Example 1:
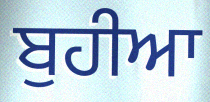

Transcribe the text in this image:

ਬੁਹੀਆ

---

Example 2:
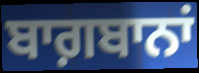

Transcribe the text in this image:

ਬਾਗ਼ਬਾਨਾਂ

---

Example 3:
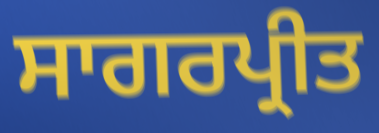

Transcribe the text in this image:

ਸਾਗਰਪ੍ਰੀਤ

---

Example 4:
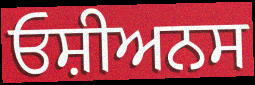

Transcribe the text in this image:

ਓਸ਼ੀਅਨਸ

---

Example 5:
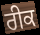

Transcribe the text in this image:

ਰੀਕ